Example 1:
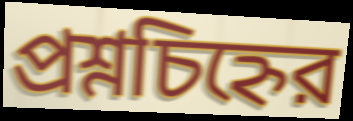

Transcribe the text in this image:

প্রশ্নচিহ্নের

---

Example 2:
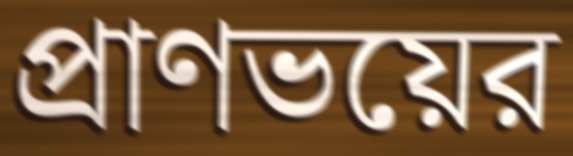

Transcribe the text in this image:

প্রাণভয়ের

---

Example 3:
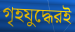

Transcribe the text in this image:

গৃহযুদ্ধেরই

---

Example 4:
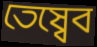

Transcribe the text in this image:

তেষ্বেব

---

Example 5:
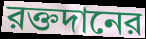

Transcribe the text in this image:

রক্তদানের